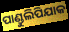
ପାଣ୍ଡୁଲିପିଯାକ